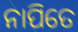
ନାପିତେ